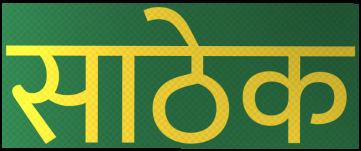
साठेक